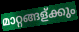
മാറ്റങ്ങള്ക്കും